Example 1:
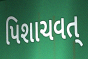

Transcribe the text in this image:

પિશાચવત્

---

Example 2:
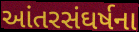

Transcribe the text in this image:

આંતરસંઘર્ષના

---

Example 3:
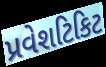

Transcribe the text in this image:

પ્રવેશટિકિટ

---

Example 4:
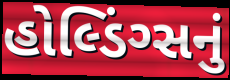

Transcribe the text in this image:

હોલ્ડિંગ્સનું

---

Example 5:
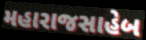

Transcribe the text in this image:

મહારાજસાહેબ